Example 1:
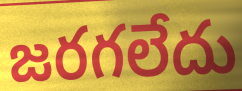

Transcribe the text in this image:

జరగలేదు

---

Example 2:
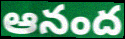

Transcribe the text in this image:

ఆనంద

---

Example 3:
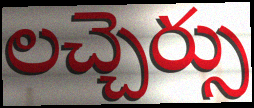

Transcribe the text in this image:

లచ్చెర్సు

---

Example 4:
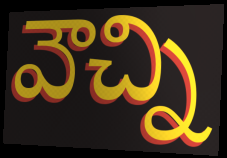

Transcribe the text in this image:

వౌచ్ని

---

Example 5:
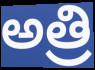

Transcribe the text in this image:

అత్రి